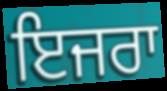
ਇਜਰਾ